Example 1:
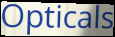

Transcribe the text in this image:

Opticals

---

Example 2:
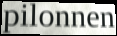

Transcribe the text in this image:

pilonnen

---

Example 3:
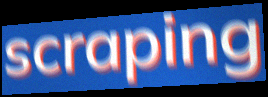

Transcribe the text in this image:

scraping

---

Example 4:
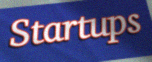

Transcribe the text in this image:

Startups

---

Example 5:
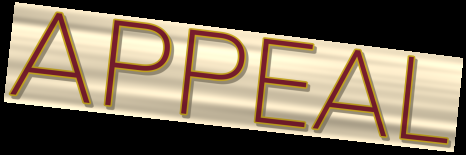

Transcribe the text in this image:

APPEAL